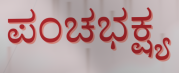
ಪಂಚಭಕ್ಷ್ಯ